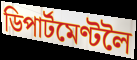
ডিপাৰ্টমেণ্টলৈ